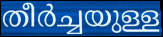
തീർച്ചയുള്ള